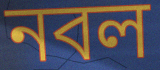
নবল